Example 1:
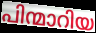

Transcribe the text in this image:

പിന്മാറിയ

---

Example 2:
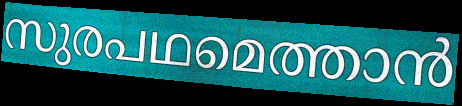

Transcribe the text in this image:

സുരപഥമെത്താൻ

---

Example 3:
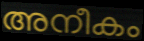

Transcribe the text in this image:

അനീകം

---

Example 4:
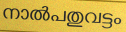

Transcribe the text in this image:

നാൽപതുവട്ടം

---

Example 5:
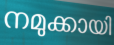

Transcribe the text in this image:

നമുക്കായി